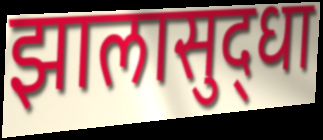
झालासुद्धा